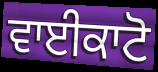
ਵਾਈਕਾਟੋ